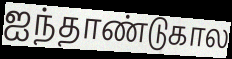
ஐந்தாண்டுகால